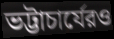
ভট্টাচার্যেরও